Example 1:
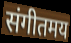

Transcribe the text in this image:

संगीतमय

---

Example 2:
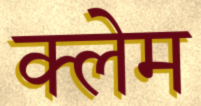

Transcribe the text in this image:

क्लेम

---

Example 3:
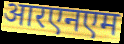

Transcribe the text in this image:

आरएनएम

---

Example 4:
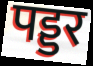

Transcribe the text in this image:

पड्डर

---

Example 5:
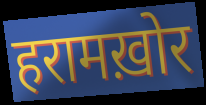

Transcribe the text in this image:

हरामख़ोर